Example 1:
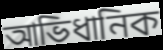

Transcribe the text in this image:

আভিধানিক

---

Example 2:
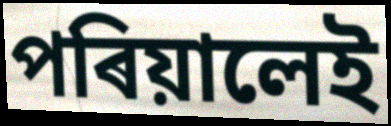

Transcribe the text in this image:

পৰিয়ালেই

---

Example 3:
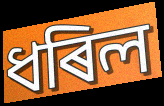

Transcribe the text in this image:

ধৰিল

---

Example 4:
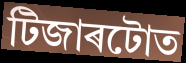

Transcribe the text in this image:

টিজাৰটোত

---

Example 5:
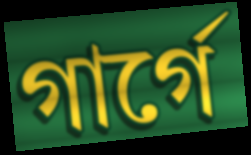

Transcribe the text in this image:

গাৰ্গে